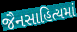
જૈનસાહિત્યમાં